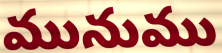
మునుము